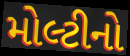
મોલ્ટીનો